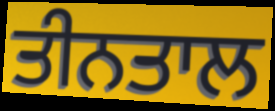
ਤੀਨਤਾਲ